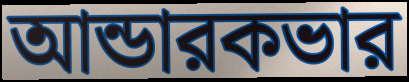
আন্ডারকভার